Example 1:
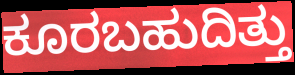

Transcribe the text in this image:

ಕೂರಬಹುದಿತ್ತು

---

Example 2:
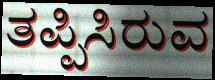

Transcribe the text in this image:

ತಪ್ಪಿಸಿರುವ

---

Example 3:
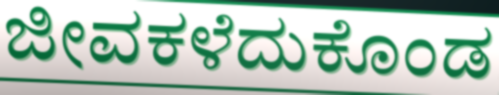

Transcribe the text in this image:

ಜೀವಕಳೆದುಕೊಂಡ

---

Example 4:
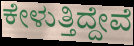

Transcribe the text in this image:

ಕೇಳುತ್ತಿದ್ದೇವೆ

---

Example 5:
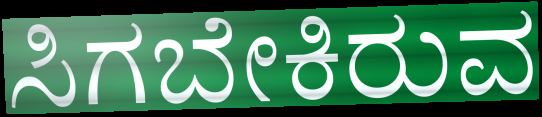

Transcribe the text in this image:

ಸಿಗಬೇಕಿರುವ